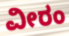
ವೀರಂ